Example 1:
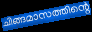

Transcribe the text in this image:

ചിങ്ങമാസത്തിന്റെ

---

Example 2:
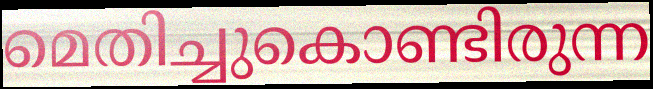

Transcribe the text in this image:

മെതിച്ചുകൊണ്ടിരുന്ന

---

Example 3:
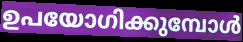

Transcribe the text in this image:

ഉപയോഗിക്കുമ്പോൾ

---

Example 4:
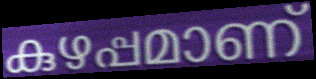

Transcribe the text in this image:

കുഴപ്പമാണ്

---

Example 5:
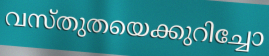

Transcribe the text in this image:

വസ്തുതയെക്കുറിച്ചോ